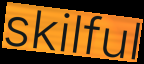
skilful